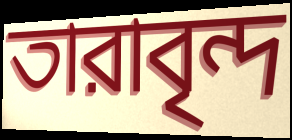
তারাবৃন্দ